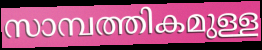
സാമ്പത്തികമുള്ള